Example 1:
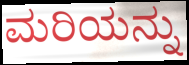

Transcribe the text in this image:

ಮರಿಯನ್ನು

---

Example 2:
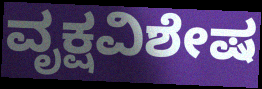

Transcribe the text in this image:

ವೃಕ್ಷವಿಶೇಷ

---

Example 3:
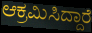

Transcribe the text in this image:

ಆಕ್ರಮಿಸಿದ್ದಾರೆ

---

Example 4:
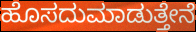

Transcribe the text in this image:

ಹೊಸದುಮಾಡುತ್ತೇನೆ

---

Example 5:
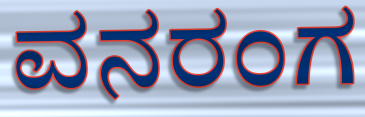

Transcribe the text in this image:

ವನರಂಗ